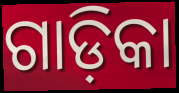
ଗାଡ଼ିକା